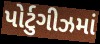
પોર્ટુગીઝમાં